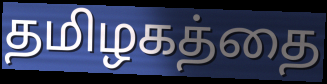
தமிழகத்தை